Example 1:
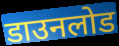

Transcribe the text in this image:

डाउनलोड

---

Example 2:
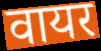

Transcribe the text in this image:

वायर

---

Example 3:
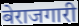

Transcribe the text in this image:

बेराजगारी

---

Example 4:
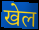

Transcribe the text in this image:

खेल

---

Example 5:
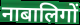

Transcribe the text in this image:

नाबालिगों